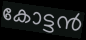
കോട്ടൻ